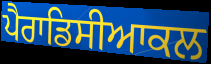
ਪੈਰਾਡਿਸੀਆਕਲ